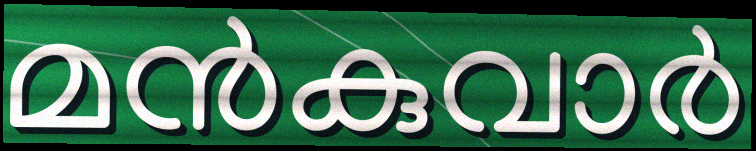
മൻകുവാർ